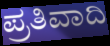
ಪ್ರತಿವಾದಿ